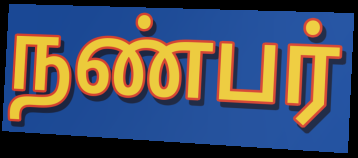
நண்பர்